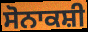
ਸੋਨਾਕਸ਼ੀ